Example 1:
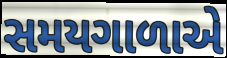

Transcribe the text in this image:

સમયગાળાએ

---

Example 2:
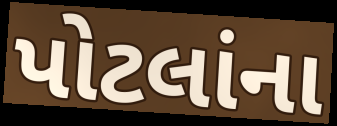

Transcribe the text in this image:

પોટલાંના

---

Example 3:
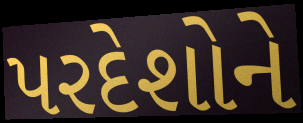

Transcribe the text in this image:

પરદેશોને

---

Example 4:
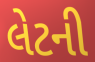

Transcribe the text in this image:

લેટની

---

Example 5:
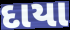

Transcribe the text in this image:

દાયા